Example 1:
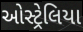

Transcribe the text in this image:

ઓસ્ટ્રેલિયા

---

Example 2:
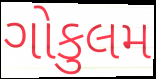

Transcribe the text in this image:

ગોકુલમ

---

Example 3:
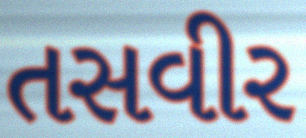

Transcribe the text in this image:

તસવીર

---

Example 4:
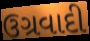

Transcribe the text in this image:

ઉગ્રવાદી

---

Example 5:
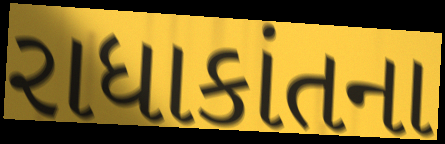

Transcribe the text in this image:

રાધાકાંતના